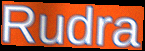
Rudra